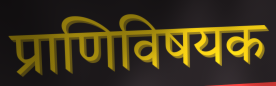
प्राणिविषयक